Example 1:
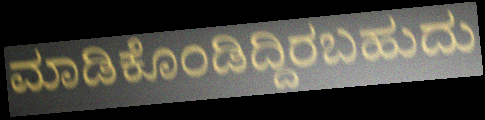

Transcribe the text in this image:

ಮಾಡಿಕೊಂಡಿದ್ದಿರಬಹುದು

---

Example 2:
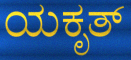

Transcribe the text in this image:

ಯಕೃತ್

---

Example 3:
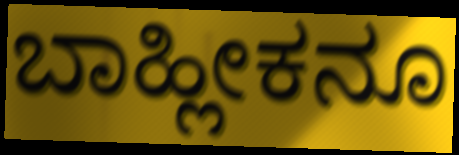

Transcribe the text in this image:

ಬಾಹ್ಲೀಕನೂ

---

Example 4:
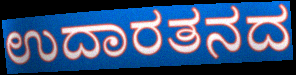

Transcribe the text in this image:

ಉದಾರತನದ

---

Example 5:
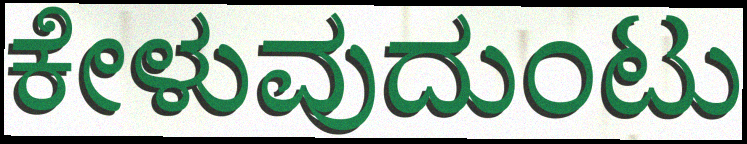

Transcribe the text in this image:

ಕೇಳುವುದುಂಟು